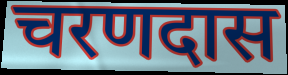
चरणदास